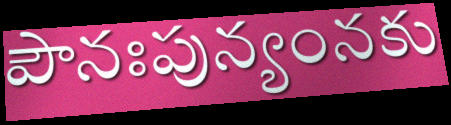
పౌనఃపున్యంనకు